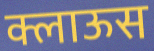
क्लाऊस